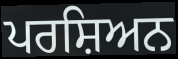
ਪਰਸ਼ਿਅਨ